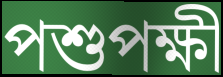
পশুপক্ষী